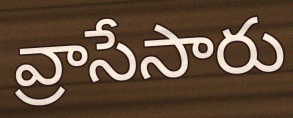
వ్రాసేసారు